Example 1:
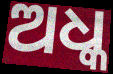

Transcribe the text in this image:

ଅଧ୍କ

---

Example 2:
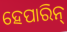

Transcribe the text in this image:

ହେପାରିନ୍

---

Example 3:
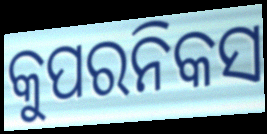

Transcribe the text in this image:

କୁପରନିକସ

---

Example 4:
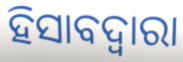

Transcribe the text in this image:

ହିସାବଦ୍ଵାରା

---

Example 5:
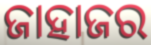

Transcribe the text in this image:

ଜାହାଜର